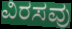
ವಿರಸವು